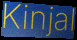
Kinjal